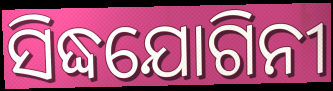
ସିଦ୍ଧଯୋଗିନୀ